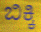
ಬಿಕ್ಕಿ